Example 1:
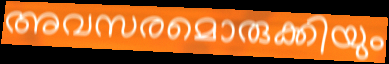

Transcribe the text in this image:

അവസരമൊരുക്കിയും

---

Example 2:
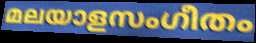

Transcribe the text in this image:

മലയാളസംഗീതം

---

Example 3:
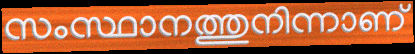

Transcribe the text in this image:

സംസ്ഥാനത്തുനിന്നാണ്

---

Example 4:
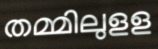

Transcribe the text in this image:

തമ്മിലുളള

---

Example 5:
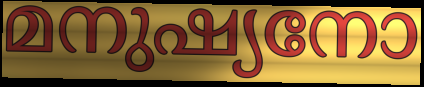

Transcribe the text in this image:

മനുഷ്യനോ